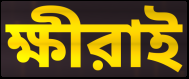
ক্ষীরাই